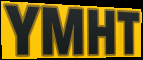
YMHT